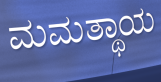
ಮಮತ್ಥಾಯ